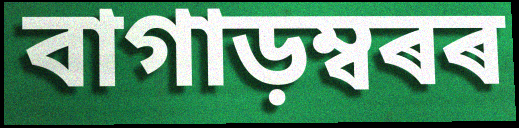
বাগাড়ম্বৰৰ